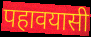
पहावयासी